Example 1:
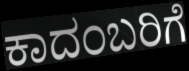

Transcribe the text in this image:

ಕಾದಂಬರಿಗೆ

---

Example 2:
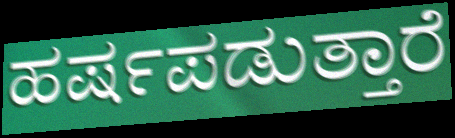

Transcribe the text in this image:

ಹರ್ಷಪಡುತ್ತಾರೆ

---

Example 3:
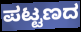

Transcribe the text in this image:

ಪಟ್ಟಣದ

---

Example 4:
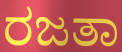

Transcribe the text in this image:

ರಜತಾ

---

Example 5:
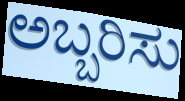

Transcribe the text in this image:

ಅಬ್ಬರಿಸು